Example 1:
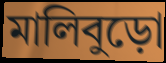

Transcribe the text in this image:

মালিবুড়ো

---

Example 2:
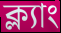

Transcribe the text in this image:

ক্ল্যাং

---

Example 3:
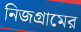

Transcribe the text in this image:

নিজগ্রামের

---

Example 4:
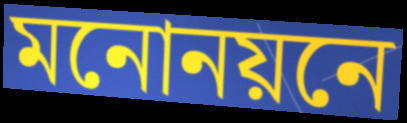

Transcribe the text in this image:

মনোনয়নে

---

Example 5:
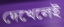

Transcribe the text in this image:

দেখেলেই